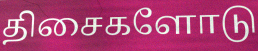
திசைகளோடு